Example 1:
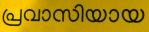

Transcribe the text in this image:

പ്രവാസിയായ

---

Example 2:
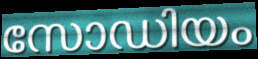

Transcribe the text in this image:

സോഡിയം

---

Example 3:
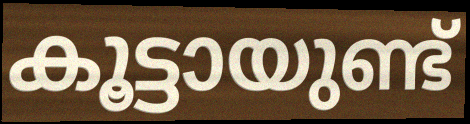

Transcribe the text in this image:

കൂട്ടായുണ്ട്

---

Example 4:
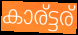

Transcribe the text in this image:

കാര്ട്ടര്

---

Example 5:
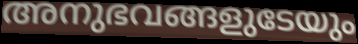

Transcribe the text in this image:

അനുഭവങ്ങളുടേയും